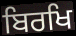
ਬਿਰਖਿ